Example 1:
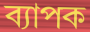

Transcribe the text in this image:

ব্য়াপক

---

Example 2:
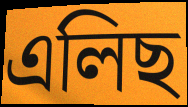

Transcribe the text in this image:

এলিছ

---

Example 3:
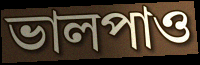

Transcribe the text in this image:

ভালপাও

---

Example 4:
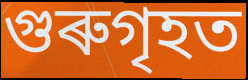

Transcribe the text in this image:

গুৰুগৃহত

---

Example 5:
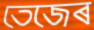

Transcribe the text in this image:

তেজেৰ